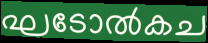
ഘടോൽകച